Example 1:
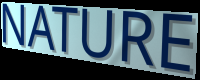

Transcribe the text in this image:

NATURE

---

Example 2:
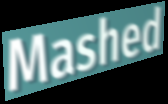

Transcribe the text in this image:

Mashed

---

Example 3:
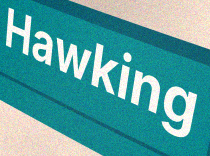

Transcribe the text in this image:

Hawking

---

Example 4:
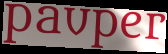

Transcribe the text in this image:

pauper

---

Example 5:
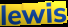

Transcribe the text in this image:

lewis